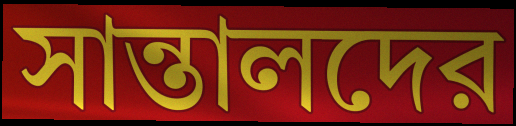
সান্তালদের